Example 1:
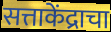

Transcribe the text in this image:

सत्ताकेंद्राचा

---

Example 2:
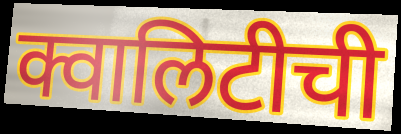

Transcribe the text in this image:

क्वालिटीची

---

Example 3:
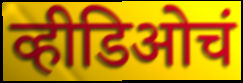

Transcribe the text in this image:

व्हीडिओचं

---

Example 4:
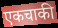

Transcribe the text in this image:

एकचाकी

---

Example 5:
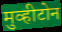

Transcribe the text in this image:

मुव्हीटोन